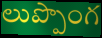
లుప్పొంగ